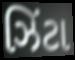
ઝિંટા